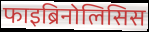
फाइब्रिनोलिसिस